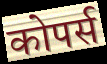
कोपर्स